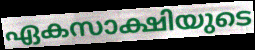
ഏകസാക്ഷിയുടെ